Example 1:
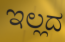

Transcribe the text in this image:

ಇಲ್ಲದ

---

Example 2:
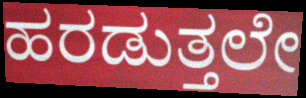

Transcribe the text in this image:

ಹರಡುತ್ತಲೇ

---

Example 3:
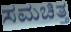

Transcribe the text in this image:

ಸಮಚಿತ್ತ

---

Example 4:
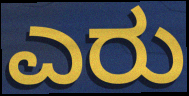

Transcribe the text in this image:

ಎರು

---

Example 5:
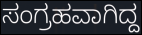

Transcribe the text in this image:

ಸಂಗ್ರಹವಾಗಿದ್ದ